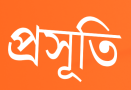
প্রসূতি